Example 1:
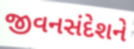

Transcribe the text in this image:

જીવનસંદેશને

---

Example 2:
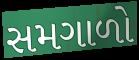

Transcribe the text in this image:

સમગાળો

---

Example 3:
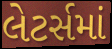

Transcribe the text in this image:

લેટર્સમાં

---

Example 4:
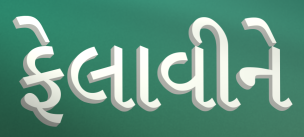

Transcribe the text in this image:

ફેલાવીને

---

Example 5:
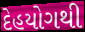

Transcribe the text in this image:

દેહયોગથી